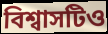
বিশ্বাসটিও